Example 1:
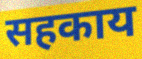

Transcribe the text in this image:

सहकाय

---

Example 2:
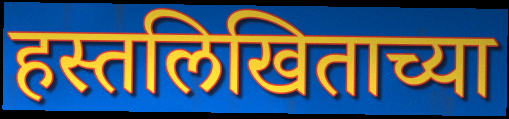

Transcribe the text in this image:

हस्तलिखिताच्या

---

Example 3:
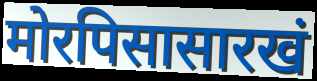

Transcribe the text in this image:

मोरपिसासारखं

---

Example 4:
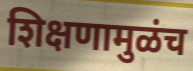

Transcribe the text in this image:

शिक्षणामुळंच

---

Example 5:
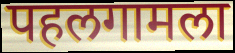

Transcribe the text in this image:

पहलगामला